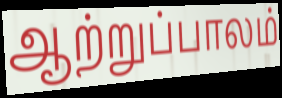
ஆற்றுப்பாலம்